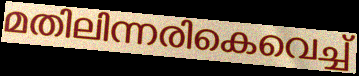
മതിലിന്നരികെവെച്ച്